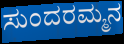
ಸುಂದರಮ್ಮನ